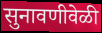
सुनावणीवेळी